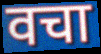
वचा